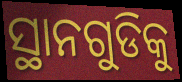
ସ୍ଥାନଗୁଡିକୁ